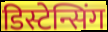
डिस्टेन्सिंग